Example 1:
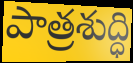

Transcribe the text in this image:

పాత్రశుద్ధి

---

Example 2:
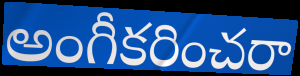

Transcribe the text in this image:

అంగీకరించరా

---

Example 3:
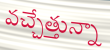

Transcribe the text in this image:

వచ్చేత్తున్నా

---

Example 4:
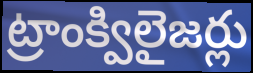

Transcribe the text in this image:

ట్రాంక్విలైజర్లు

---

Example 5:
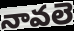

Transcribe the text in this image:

నావలె